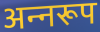
अन्नरूप